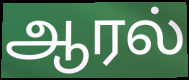
ஆரல்